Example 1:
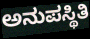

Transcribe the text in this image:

ಅನುಪಸ್ಥಿತಿ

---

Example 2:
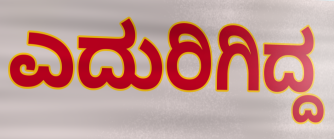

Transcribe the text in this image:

ಎದುರಿಗಿದ್ದ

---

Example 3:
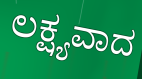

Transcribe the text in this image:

ಲಕ್ಷ್ಯವಾದ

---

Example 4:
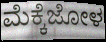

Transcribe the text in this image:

ಮೆಕ್ಕೆಜೋಳ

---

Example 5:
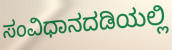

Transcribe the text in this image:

ಸಂವಿಧಾನದಡಿಯಲ್ಲಿ